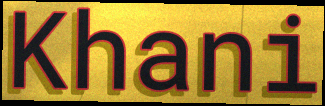
Khani